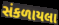
સંકળાયલા